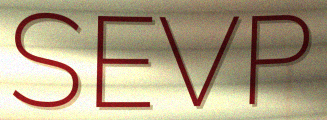
SEVP